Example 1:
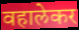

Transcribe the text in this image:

वहालेकर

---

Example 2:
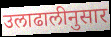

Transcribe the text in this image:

उलाढालीनुसार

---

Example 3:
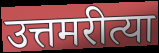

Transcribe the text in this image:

उत्तमरीत्या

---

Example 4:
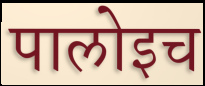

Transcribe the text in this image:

पालोइच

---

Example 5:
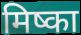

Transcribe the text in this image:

मिष्का